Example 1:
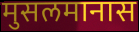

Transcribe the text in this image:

मुसलमानास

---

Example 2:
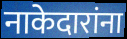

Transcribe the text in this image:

नाकेदारांना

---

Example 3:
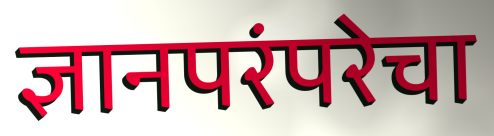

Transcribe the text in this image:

ज्ञानपरंपरेचा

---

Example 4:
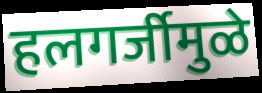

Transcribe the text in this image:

हलगर्जीमुळे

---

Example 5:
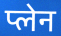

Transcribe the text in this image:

प्लेन